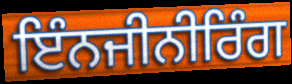
ਇੰਨਜੀਨੀਰਿੰਗ